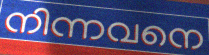
നിന്നവനെ